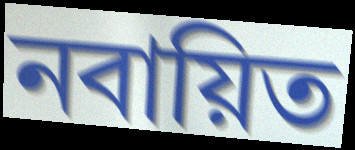
নবায়িত